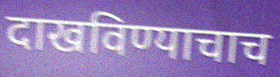
दाखविण्याचाच